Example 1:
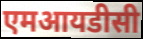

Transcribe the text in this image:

एमआयडीसी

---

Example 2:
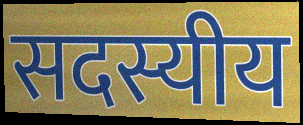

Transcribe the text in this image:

सदस्यीय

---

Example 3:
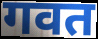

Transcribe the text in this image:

गवत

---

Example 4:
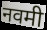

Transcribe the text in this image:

नवमी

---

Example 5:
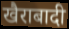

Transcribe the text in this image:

खैराबादी